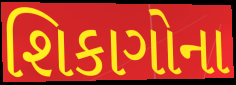
શિકાગોના